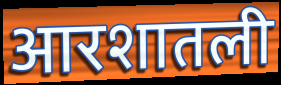
आरशातली